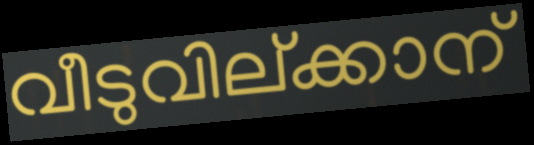
വീടുവില്ക്കാന്